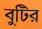
বুটির